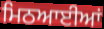
ਮਿਠਆਈਆਂ